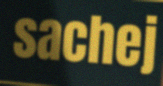
sachej